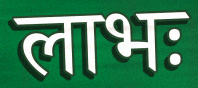
लाभः